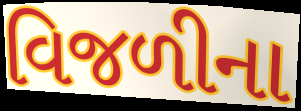
વિજળીના